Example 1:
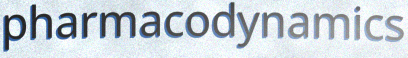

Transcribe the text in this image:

pharmacodynamics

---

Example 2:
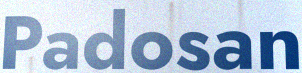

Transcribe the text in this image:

Padosan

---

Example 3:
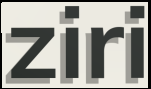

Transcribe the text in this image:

ziri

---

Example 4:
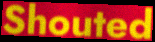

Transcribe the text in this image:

Shouted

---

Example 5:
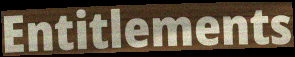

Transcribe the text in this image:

Entitlements